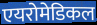
एयरोमेडिकल